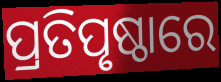
ପ୍ରତିପୃଷ୍ଠାରେ